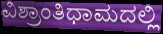
ವಿಶ್ರಾಂತಿಧಾಮದಲ್ಲಿ